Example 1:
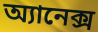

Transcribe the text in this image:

অ্যানেক্স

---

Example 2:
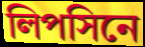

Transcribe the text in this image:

লিপসিনে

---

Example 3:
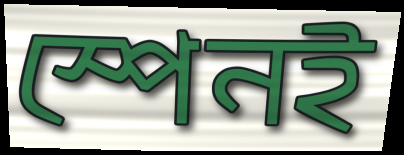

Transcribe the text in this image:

স্পেনই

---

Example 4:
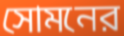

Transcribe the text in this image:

সোমনের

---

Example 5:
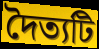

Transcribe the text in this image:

দৈত্যটি